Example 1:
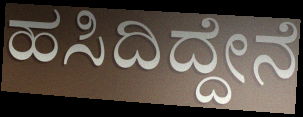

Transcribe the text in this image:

ಹಸಿದಿದ್ದೇನೆ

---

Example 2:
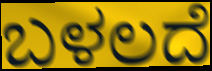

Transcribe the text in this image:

ಬಳಲದೆ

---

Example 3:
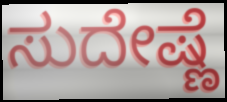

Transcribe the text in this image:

ಸುದೇಷ್ಣೆ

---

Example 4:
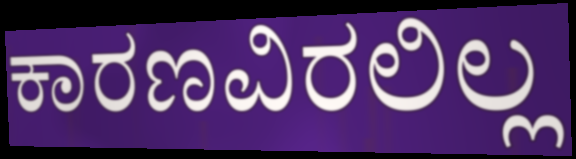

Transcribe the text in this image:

ಕಾರಣವಿರಲಿಲ್ಲ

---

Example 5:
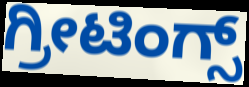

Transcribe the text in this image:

ಗ್ರೀಟಿಂಗ್ಸ್